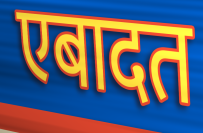
एबादत